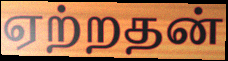
ஏற்றதன்